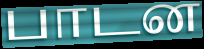
பாடன